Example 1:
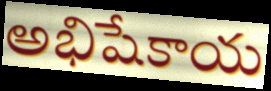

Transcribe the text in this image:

అభిషేకాయ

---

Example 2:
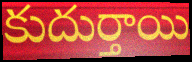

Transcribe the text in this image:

కుదుర్తాయి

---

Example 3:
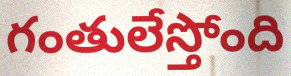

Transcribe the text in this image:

గంతులేస్తోంది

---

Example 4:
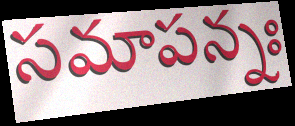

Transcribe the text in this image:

సమాపన్నః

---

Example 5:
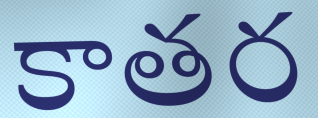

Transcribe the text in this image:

కాతర